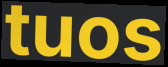
tuos